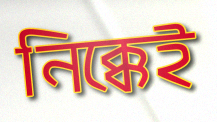
নিক্কেই